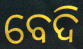
ବେଦି